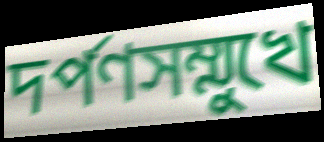
দর্পণসম্মুখে